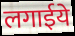
लगाईये